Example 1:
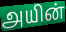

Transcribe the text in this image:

அயின்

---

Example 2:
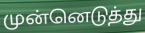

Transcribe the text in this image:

முன்னெடுத்து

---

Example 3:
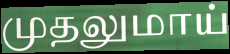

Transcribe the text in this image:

முதலுமாய்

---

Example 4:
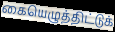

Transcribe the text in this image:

கையெழுத்திட்டுக்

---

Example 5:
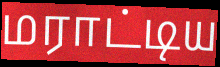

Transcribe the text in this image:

மராட்டிய